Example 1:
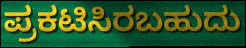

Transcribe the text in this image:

ಪ್ರಕಟಿಸಿರಬಹುದು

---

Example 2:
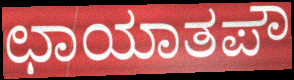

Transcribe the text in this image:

ಛಾಯಾತಪೌ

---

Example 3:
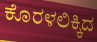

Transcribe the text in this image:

ಕೊರಳಲಿಕ್ಕಿದ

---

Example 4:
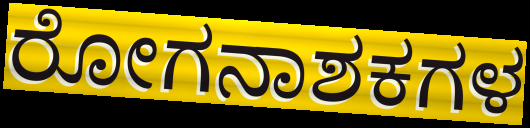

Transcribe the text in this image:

ರೋಗನಾಶಕಗಳ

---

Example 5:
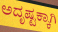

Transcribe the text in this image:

ಅದೃಷ್ಟಕ್ಕಾಗಿ